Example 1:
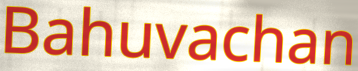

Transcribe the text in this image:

Bahuvachan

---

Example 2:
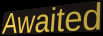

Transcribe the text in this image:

Awaited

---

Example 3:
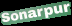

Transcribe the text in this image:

Sonarpur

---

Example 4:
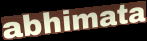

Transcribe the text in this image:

abhimata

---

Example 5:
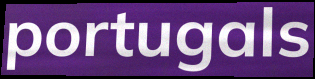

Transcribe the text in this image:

portugals